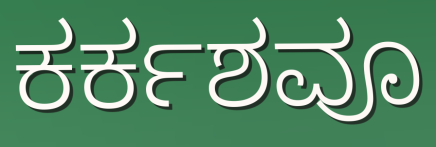
ಕರ್ಕಶವೂ